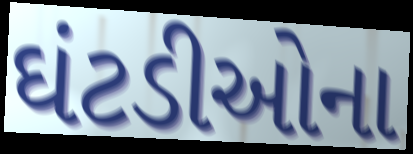
ઘંટડીઓના